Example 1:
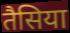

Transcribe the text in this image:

तैसिया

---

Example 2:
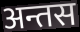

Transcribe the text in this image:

अन्तस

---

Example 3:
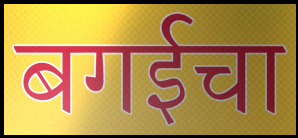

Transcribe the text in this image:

बगईचा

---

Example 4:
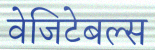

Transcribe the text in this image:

वेजिटेबल्स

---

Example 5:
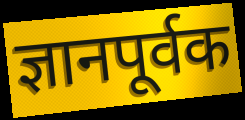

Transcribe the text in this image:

ज्ञानपूर्वक